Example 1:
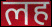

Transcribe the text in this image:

लह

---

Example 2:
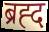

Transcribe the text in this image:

ब्रह्द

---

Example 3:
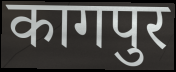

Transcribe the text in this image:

कागपुर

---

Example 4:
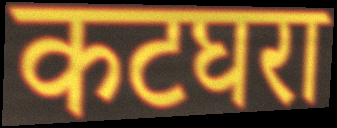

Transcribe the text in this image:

कटघरा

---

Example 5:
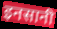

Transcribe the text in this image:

इनसानी